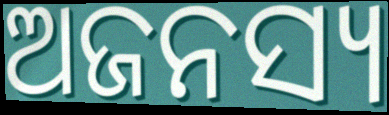
ଅଜନସ୍ୟ